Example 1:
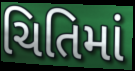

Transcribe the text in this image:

ચિતિમાં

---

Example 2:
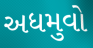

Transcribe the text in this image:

અધમુવો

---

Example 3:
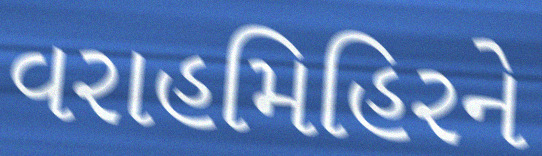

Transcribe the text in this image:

વરાહમિહિરને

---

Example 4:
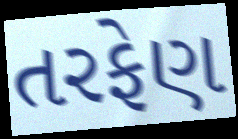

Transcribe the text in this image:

તરફેણ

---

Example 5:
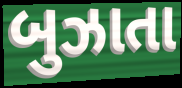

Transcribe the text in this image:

બુઝાતા